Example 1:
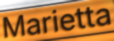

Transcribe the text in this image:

Marietta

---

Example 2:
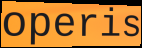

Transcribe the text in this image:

operis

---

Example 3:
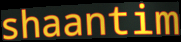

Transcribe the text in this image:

shaantim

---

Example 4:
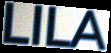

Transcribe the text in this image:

LILA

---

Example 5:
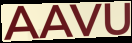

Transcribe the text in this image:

AAVU